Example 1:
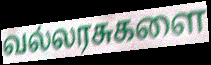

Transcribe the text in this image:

வல்லரசுகளை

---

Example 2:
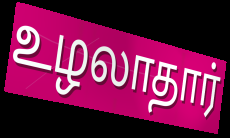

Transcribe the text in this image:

உழலாதார்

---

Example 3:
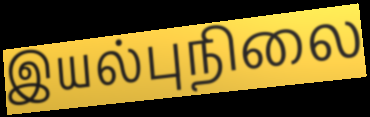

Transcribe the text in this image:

இயல்புநிலை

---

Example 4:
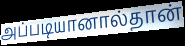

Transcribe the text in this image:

அப்படியானால்தான்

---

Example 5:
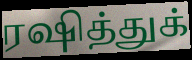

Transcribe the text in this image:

ரஷித்துக்